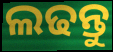
ଲଢନ୍ତୁ